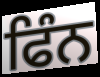
ਫਿੰਨ